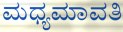
ಮಧ್ಯಮಾವತಿ